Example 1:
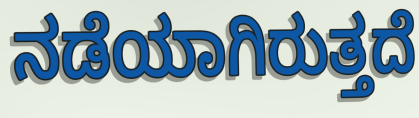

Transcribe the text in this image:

ನಡೆಯಾಗಿರುತ್ತದೆ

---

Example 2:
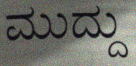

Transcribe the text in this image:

ಮುದ್ದು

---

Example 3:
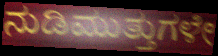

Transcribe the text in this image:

ನುಡಿಮುತ್ತುಗಳೇ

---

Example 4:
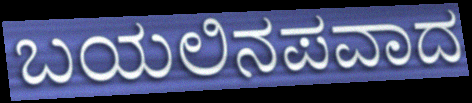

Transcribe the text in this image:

ಬಯಲಿನಪವಾದ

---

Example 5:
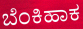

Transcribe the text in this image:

ಬೆಂಕಿಹಾಕ